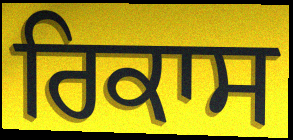
ਰਿਕਾਸ